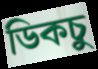
ডিকচু